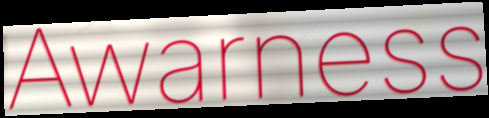
Awarness